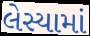
લેસ્યામાં